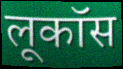
लूकॉस